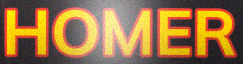
HOMER